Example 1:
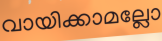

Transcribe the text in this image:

വായിക്കാമല്ലോ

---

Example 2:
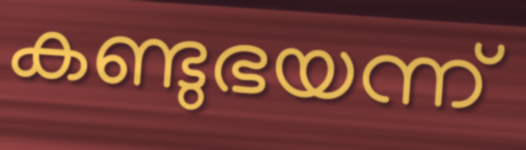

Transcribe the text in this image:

കണ്ടുഭയന്ന്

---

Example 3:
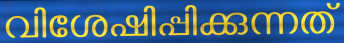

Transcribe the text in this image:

വിശേഷിപ്പിക്കുന്നത്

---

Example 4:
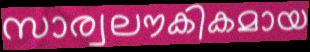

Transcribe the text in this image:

സാര്വലൗകികമായ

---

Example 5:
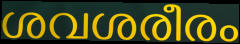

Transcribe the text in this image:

ശവശരീരം